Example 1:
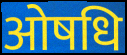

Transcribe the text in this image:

ओषधि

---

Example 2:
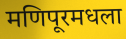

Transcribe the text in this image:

मणिपूरमधला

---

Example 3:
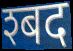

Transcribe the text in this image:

श्बद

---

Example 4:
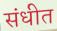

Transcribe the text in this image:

संधीत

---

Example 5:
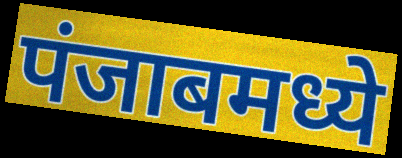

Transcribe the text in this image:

पंजाबमध्ये